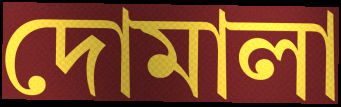
দোমালা